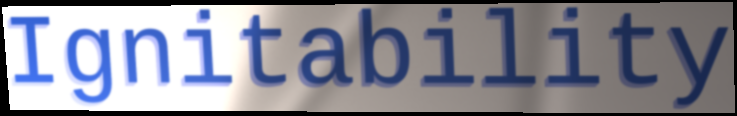
Ignitability